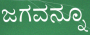
ಜಗವನ್ನೂ